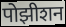
पोझीशन